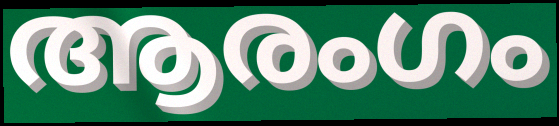
ആരംഗം